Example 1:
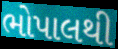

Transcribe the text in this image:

ભોપાલથી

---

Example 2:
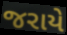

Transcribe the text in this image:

જરાયે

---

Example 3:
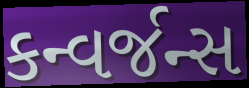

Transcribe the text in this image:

કન્વર્જન્સ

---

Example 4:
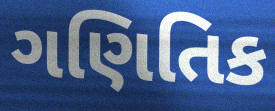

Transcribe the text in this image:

ગણિતિક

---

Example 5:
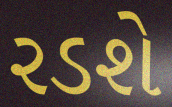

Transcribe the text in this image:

રડશે